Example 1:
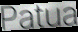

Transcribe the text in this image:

Patua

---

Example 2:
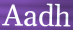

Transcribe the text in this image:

Aadh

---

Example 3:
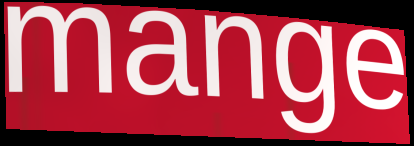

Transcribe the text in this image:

mange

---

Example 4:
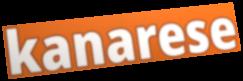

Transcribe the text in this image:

kanarese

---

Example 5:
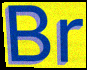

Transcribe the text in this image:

Br